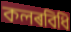
কলৰবিধি